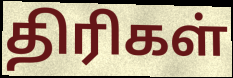
திரிகள்